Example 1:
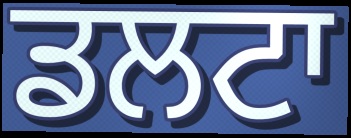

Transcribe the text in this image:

ਡਲਟਾ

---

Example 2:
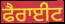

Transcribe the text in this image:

ਫੈਰਾਈਟ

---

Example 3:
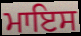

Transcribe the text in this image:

ਮਾਇਸ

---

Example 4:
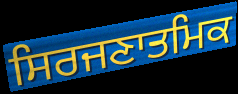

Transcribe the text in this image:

ਸਿਰਜਣਾਤਮਿਕ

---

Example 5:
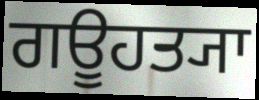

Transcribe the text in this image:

ਗਊਹਤ੍ਯਾ